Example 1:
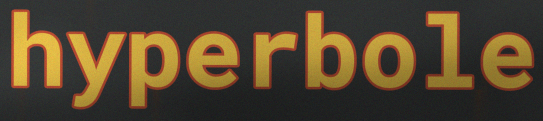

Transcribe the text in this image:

hyperbole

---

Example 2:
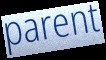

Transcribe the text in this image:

parent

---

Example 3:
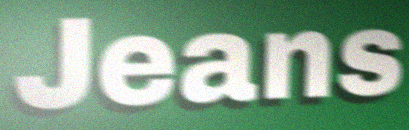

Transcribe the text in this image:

Jeans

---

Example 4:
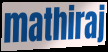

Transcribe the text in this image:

mathiraj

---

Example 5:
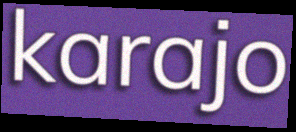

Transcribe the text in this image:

karajo